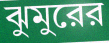
ঝুমুরের